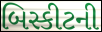
બિસ્કીટની